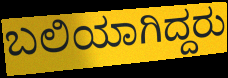
ಬಲಿಯಾಗಿದ್ದರು